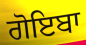
ਗੋਇਬਾ